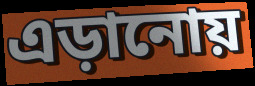
এড়ানোয়